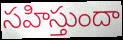
సహిస్తుందా